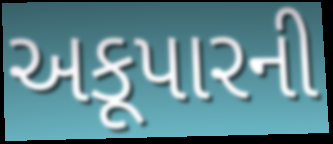
અકૂપારની